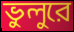
ভুলুরে